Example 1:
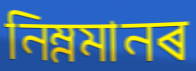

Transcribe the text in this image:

নিম্নমানৰ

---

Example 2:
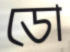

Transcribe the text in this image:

ডো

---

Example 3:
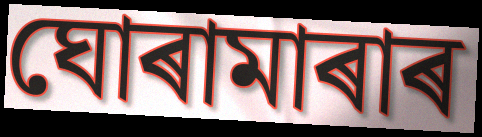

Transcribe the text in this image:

ঘোৰামাৰাৰ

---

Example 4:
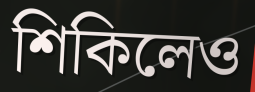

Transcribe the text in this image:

শিকিলেও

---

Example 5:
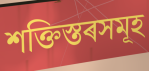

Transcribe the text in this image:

শক্তিস্তৰসমূহ